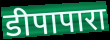
डीपापारा